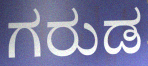
ಗರುಡ